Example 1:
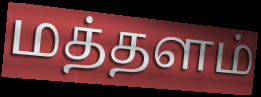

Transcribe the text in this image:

மத்தளம்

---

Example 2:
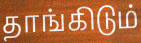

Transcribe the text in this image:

தாங்கிடும்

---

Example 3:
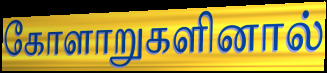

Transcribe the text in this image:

கோளாறுகளினால்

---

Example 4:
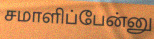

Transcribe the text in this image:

சமாளிப்பேன்னு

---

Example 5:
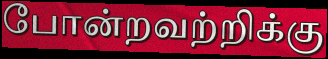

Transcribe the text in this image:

போன்றவற்றிக்கு